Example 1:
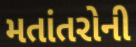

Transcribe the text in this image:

મતાંતરોની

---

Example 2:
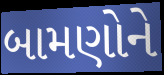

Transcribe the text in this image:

બામણોને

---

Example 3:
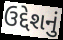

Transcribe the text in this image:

ઉદ્દેશનું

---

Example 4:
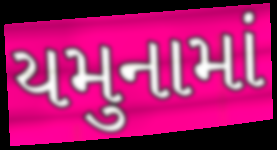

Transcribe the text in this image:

યમુનામાં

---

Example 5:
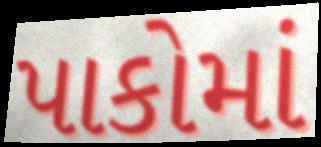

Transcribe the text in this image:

પાકોમાં